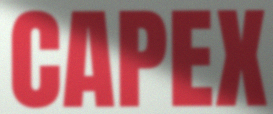
CAPEX